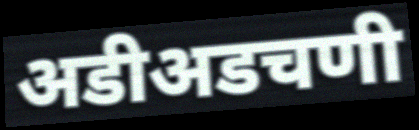
अडीअडचणी